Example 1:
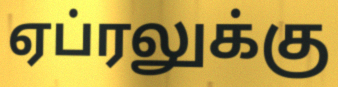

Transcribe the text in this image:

ஏப்ரலுக்கு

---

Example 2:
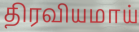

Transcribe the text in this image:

திரவியமாய்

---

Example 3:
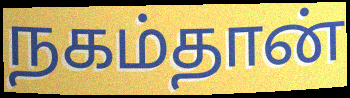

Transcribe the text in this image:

நகம்தான்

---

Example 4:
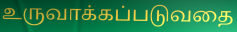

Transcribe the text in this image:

உருவாக்கப்படுவதை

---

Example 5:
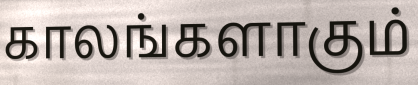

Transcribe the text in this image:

காலங்களாகும்